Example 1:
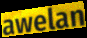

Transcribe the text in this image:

awelan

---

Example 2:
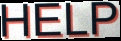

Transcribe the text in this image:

HELP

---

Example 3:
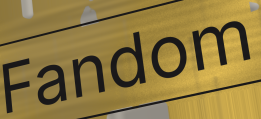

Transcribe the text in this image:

Fandom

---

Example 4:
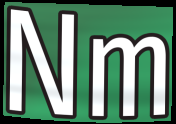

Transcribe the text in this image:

Nm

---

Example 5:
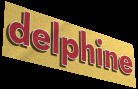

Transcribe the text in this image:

delphine